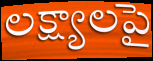
లక్ష్యాలపై